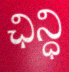
ఛిన్ధి